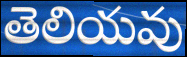
తెలియవు